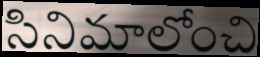
సినిమాలోంచి